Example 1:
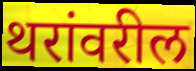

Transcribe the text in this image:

थरांवरील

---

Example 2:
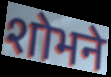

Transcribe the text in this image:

शोभने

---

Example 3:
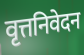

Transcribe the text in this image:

वृत्तनिवेदन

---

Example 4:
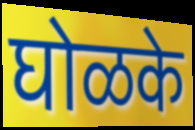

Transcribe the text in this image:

घोळके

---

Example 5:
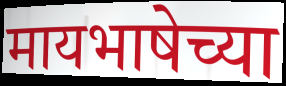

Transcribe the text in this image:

मायभाषेच्या